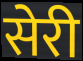
सेरी